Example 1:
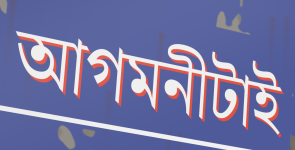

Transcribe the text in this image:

আগমনীটাই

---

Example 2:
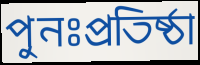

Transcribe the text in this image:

পুনঃপ্রতিষ্ঠা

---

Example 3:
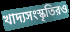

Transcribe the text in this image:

খাদ্যসংস্কৃতিরও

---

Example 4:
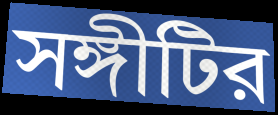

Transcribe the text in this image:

সঙ্গীটির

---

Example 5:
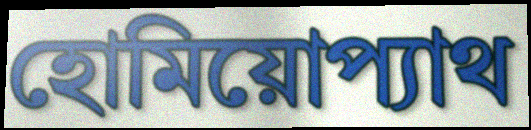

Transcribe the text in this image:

হোমিয়োপ্যাথ